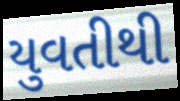
યુવતીથી